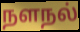
நளநல்